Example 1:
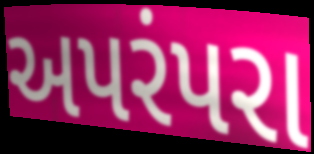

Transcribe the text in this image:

અપરંપરા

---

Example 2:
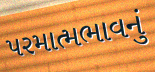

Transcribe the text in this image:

પરમાત્મભાવનું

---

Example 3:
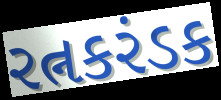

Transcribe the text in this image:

રત્નકરંડક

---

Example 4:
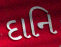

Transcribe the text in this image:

દાનિ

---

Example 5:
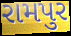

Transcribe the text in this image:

રામપુર